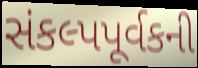
સંકલ્પપૂર્વકની